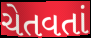
ચેતવતાં